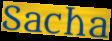
Sacha